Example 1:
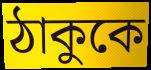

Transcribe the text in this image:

ঠাকুকে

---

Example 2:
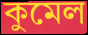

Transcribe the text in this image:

কুমেল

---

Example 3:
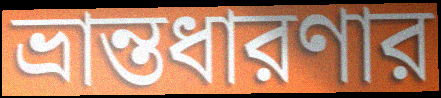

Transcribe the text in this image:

ভ্রান্তধারণার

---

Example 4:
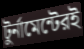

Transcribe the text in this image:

টুর্নামেন্টেরই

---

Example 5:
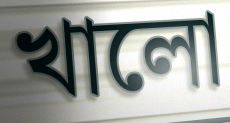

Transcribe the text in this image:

খালো